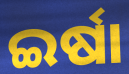
ଇର୍ଷା